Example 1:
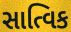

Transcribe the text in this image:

સાત્વિક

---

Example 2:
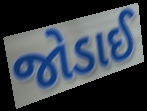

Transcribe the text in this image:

જોડાઈ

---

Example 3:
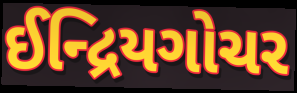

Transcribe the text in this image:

ઈન્દ્રિયગોચર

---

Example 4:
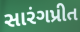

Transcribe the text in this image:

સારંગપ્રીત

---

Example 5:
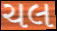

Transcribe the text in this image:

ચલ